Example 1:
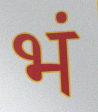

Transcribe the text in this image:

भं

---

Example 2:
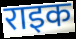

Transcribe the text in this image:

राइक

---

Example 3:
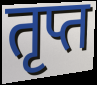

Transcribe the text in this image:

तृप्त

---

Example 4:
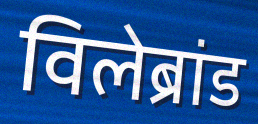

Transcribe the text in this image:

विलेब्रांड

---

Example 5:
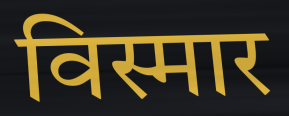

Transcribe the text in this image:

विस्मार